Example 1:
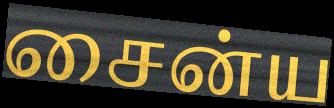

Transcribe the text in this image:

சைன்ய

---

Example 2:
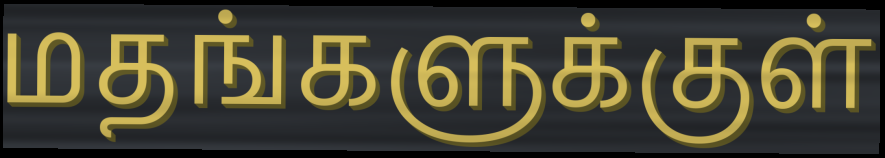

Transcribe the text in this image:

மதங்களுக்குள்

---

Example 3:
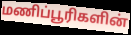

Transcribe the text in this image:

மணிப்பூரிகளின்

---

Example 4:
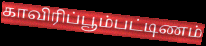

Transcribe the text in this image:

காவிரிப்பூம்பட்டிணம்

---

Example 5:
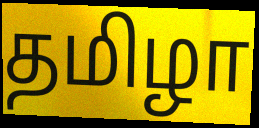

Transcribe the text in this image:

தமிழா